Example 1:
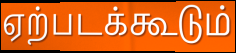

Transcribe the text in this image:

ஏற்படக்கூடும்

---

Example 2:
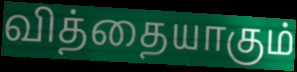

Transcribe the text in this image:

வித்தையாகும்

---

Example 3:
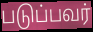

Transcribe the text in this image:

படுப்பவர்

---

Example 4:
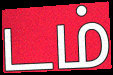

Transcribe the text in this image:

டம்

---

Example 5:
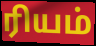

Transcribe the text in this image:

ரியம்